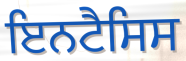
ਇਨਟੈਸਿਸ